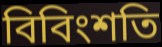
বিবিংশতি